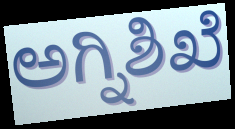
ಅಗ್ನಿಶಿಖೆ